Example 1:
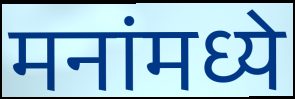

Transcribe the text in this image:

मनांमध्ये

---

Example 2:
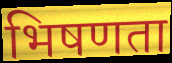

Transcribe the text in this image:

भिषणता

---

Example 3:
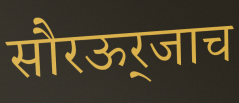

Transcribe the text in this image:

सौरऊर्जाच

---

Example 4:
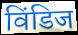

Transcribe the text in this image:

विंडिज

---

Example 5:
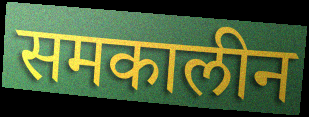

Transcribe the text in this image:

समकालीन